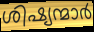
ശിഷ്യന്മാർ